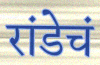
रांडेचं